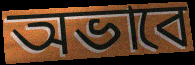
অভাবে